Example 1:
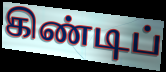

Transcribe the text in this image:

கிண்டிப்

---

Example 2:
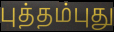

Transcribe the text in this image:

புத்தம்புது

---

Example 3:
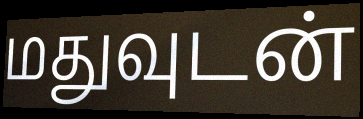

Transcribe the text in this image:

மதுவுடன்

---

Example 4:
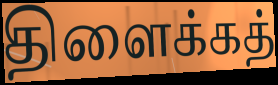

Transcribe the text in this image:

திளைக்கத்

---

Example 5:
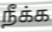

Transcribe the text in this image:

நீக்க